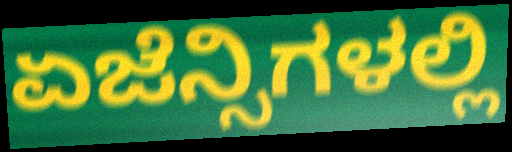
ಏಜೆನ್ಸಿಗಳಲ್ಲಿ